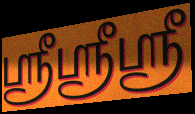
ஸ்ரீஸ்ரீஸ்ரீ